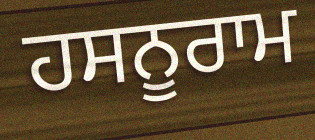
ਹਸਨੂਰਾਮ